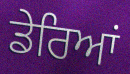
ਡੇਰਿਆਂ